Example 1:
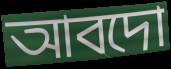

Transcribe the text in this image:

আবদো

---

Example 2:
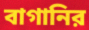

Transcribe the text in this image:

বাগানির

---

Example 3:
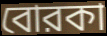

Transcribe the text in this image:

বোরকা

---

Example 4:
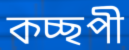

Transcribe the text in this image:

কচ্ছপী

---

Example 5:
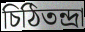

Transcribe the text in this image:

চিঠিতন্দ্রা